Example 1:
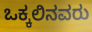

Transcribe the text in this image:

ಒಕ್ಕಲಿನವರು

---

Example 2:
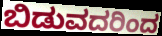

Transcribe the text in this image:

ಬಿಡುವದರಿಂದ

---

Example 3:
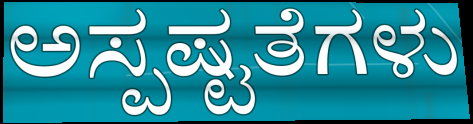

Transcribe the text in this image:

ಅಸ್ಪಷ್ಟತೆಗಳು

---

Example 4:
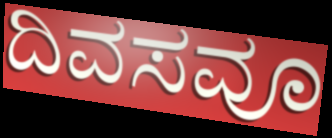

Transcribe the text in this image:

ದಿವಸವೂ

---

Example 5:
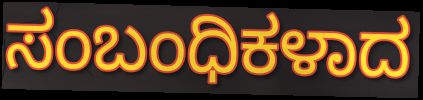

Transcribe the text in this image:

ಸಂಬಂಧಿಕಳಾದ